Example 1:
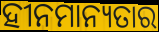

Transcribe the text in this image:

ହୀନମାନ୍ୟତାର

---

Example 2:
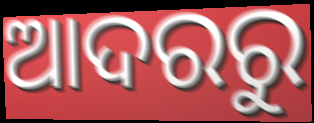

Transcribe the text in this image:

ଆଦରରୁ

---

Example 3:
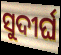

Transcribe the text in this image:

ସୁଦୀର୍ଘ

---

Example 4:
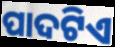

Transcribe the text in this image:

ପାଦଟିଏ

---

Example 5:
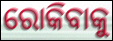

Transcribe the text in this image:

ରୋକିବାକୁ